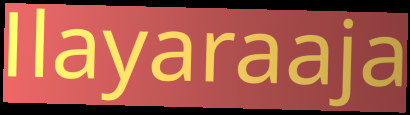
Ilayaraaja